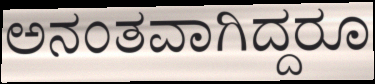
ಅನಂತವಾಗಿದ್ದರೂ